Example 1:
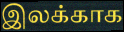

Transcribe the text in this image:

இலக்காக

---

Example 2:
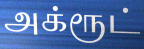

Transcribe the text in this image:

அக்ரூட்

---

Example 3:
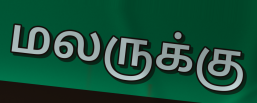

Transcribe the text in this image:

மலருக்கு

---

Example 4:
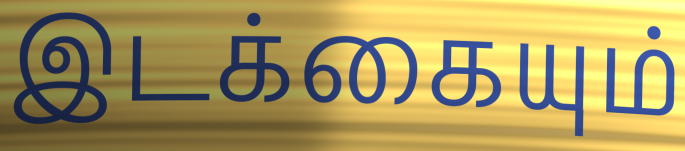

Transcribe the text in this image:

இடக்கையும்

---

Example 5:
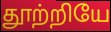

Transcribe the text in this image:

தூற்றியே